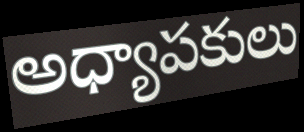
అధ్యాపకులు